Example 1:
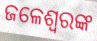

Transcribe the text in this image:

ଜଳେଶ୍ଵରଙ୍କ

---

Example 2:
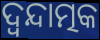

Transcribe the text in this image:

ଦ୍ଵନ୍ଦାତ୍ମକ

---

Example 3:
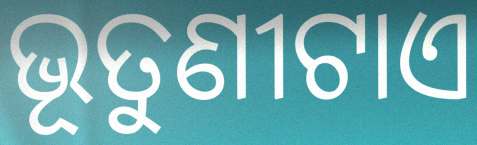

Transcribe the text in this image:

ଭୂତୁଣୀଟାଏ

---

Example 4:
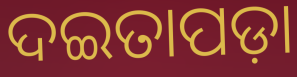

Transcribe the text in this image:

ଦଇତାପଡ଼ା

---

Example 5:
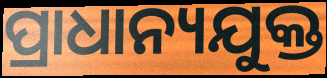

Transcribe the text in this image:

ପ୍ରାଧାନ୍ୟଯୁକ୍ତ